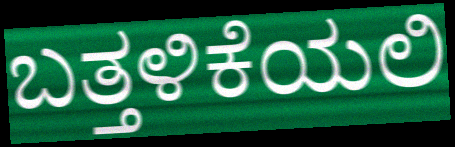
ಬತ್ತಳಿಕೆಯಲಿ